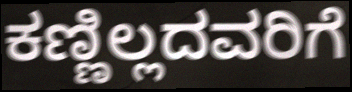
ಕಣ್ಣಿಲ್ಲದವರಿಗೆ